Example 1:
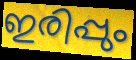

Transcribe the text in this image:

ഇരിപ്പും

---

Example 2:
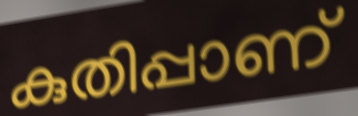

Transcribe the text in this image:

കുതിപ്പാണ്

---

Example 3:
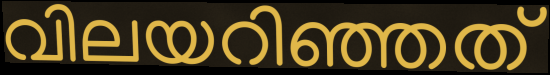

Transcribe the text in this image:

വിലയറിഞ്ഞത്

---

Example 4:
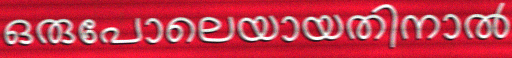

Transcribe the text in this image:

ഒരുപോലെയായതിനാൽ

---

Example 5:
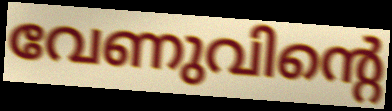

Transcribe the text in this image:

വേണുവിന്റെ